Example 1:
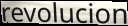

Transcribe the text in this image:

revolucion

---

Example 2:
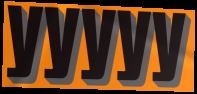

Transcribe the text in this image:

yyyyy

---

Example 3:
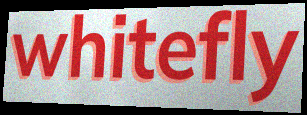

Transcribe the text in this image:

whitefly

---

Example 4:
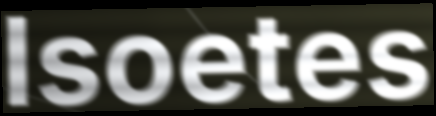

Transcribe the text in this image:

Isoetes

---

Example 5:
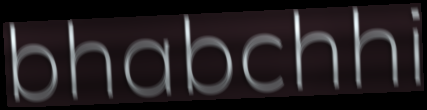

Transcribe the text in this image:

bhabchhi